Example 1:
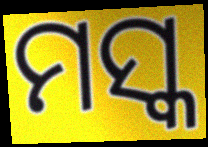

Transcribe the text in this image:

ମସ୍କ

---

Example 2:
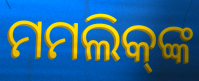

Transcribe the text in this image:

ମମଲିକ୍‌ଙ୍କ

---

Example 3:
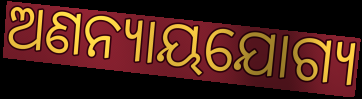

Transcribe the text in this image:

ଅଣନ୍ୟାୟଯୋଗ୍ୟ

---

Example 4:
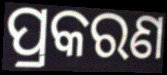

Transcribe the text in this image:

ପ୍ରକରଣ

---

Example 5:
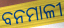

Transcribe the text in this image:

ବନମାଳୀ